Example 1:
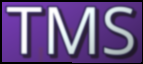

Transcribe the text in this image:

TMS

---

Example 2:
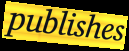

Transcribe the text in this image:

publishes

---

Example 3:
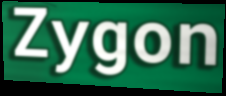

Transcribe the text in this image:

Zygon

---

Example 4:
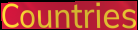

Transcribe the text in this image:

Countries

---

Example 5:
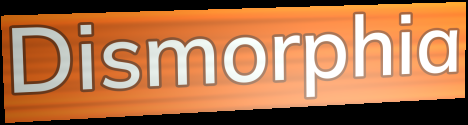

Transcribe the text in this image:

Dismorphia